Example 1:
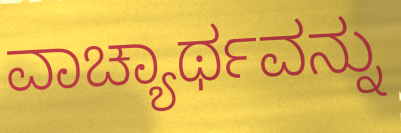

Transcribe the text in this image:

ವಾಚ್ಯಾರ್ಥವನ್ನು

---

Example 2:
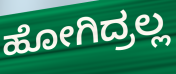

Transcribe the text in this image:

ಹೋಗಿದ್ರಲ್ಲ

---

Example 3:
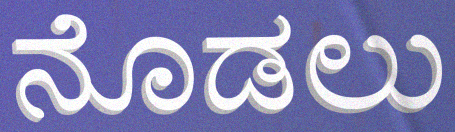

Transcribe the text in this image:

ನೊಡಲು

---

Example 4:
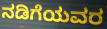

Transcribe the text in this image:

ನಡಿಗೆಯವರ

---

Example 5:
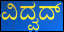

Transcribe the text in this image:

ವಿದ್ವದ್